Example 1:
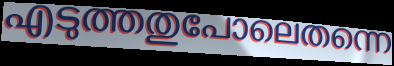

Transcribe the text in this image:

എടുത്തതുപോലെതന്നെ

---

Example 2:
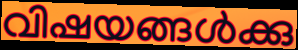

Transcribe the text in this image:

വിഷയങ്ങൾക്കു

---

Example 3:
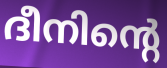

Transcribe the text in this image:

ദീനിന്റെ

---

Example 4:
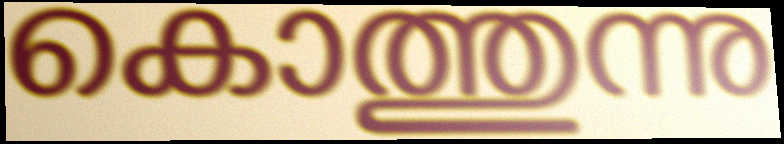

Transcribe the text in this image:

കൊത്തുന്നു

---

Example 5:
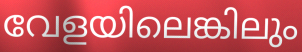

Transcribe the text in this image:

വേളയിലെങ്കിലും